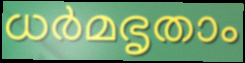
ധർമഭൃതാം